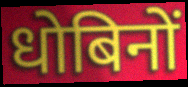
धोबिनों